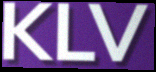
KLV